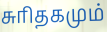
சுரிதகமும்